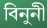
বিনুনী